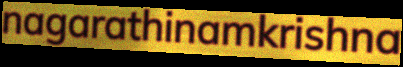
nagarathinamkrishna